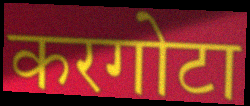
करगोटा